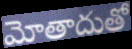
మోతాదుతో